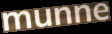
munne